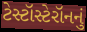
ટેસ્ટૉસ્ટેરૉનનું